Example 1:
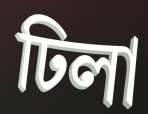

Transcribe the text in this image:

ঢিলা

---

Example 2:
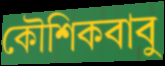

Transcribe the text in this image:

কৌশিকবাবু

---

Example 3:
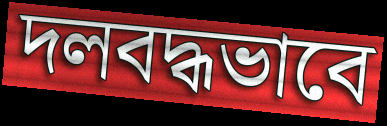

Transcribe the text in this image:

দলবদ্ধভাবে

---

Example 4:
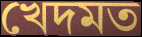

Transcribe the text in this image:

খেদমত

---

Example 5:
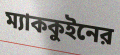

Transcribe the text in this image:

ম্যাককুইনের